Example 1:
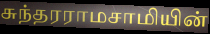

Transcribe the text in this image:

சுந்தரராமசாமியின்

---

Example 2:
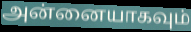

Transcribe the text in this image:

அன்னையாகவும்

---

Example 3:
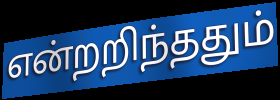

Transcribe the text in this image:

என்றறிந்ததும்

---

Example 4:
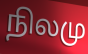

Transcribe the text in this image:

நிலமு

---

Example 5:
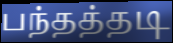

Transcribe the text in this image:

பந்தத்தடி